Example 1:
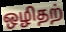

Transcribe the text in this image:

ஒழிதற்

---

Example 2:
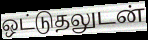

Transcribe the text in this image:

ஒட்டுதலுடன்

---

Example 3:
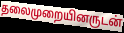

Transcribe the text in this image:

தலைமுறையினருடன்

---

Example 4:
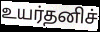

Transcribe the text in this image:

உயர்தனிச்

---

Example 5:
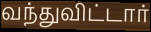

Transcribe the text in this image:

வந்துவிட்டார்